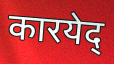
कारयेद्